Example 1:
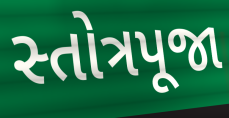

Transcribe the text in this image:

સ્તોત્રપૂજા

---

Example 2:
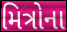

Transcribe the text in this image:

મિત્રોના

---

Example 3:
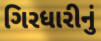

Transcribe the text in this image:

ગિરધારીનું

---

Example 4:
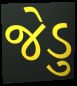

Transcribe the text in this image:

જેડુ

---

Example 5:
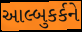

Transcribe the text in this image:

આલ્બુકર્કને